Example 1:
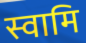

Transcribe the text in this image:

स्वामि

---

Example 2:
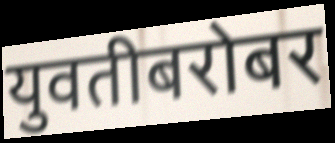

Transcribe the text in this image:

युवतीबरोबर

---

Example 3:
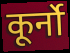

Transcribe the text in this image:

कूर्नो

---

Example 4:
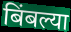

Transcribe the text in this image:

बिंबल्या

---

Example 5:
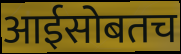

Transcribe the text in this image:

आईसोबतच